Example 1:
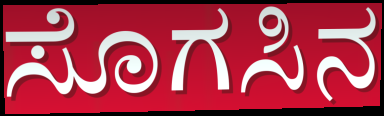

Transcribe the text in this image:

ಸೊಗಸಿನ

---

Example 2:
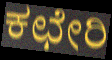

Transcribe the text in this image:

ಕಛೇರಿ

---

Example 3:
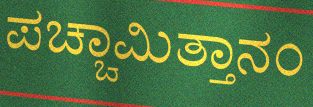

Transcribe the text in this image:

ಪಚ್ಚಾಮಿತ್ತಾನಂ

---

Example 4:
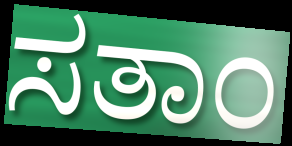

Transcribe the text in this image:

ಸತಾಂ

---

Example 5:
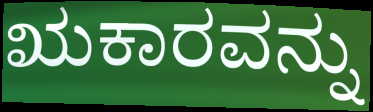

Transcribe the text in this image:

ಋಕಾರವನ್ನು